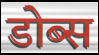
डोब्स